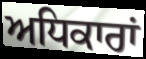
ਅਧਿਕਾਰਾਂ